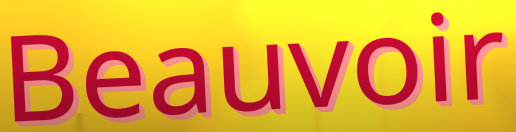
Beauvoir